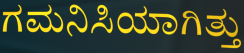
ಗಮನಿಸಿಯಾಗಿತ್ತು